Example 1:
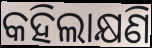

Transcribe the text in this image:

କହିଲାକ୍ଷଣି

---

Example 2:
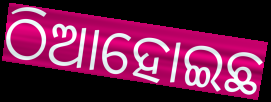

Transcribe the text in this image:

ଠିଆହୋଇଛ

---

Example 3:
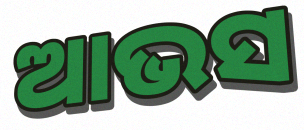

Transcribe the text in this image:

ଆଭସ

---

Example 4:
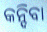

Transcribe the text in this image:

କନ୍ଦିବା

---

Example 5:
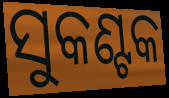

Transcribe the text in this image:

ସୁକଣ୍ଟକ